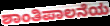
ಶಾಂತಿಪಾಲನೆಯ